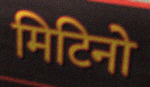
मिटिनो